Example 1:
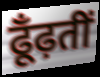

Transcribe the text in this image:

ढूँढ़तीं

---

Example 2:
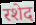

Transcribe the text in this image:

रशेद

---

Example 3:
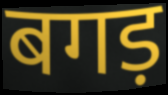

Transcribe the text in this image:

बगड़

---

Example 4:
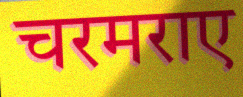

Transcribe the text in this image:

चरमराए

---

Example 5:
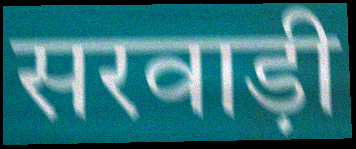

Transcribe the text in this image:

सरवाड़ी